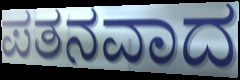
ಪತನವಾದ